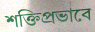
শক্তিপ্রভাবে